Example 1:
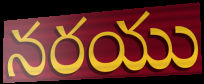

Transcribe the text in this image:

నరయు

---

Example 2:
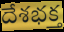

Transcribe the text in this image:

దేశభక్త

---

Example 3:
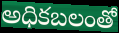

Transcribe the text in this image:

అధికబలంతో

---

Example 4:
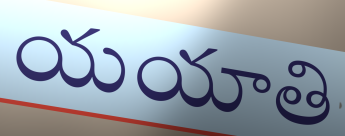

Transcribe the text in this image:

యయాతి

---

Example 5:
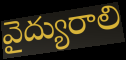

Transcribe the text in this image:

వైద్యురాలి